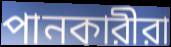
পানকারীরা